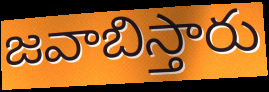
జవాబిస్తారు